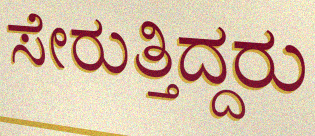
ಸೇರುತ್ತಿದ್ದರು